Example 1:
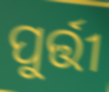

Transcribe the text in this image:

ପୁର୍ତ୍ତୀ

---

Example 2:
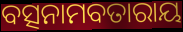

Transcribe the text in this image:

ବତ୍ସନାମବତାରାୟ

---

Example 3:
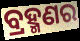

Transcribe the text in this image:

ବ୍ରହ୍ମଣର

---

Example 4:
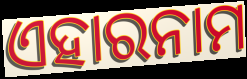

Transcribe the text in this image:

ଏହାରନାମ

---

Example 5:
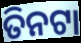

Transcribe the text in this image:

ତିନଟା